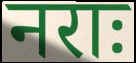
नराः